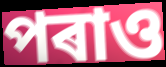
পৰাও